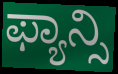
ಫ್ಯಾನ್ಸಿ